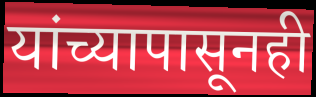
यांच्यापासूनही